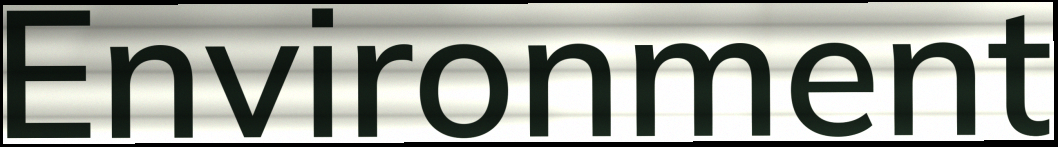
Environment